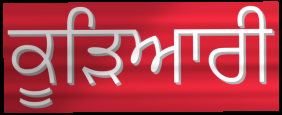
ਕੂੜਿਆਰੀ